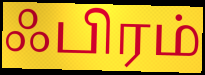
ஃபிரம்